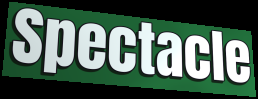
Spectacle